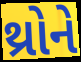
થ્રોને